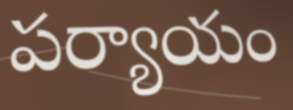
పర్యాయం